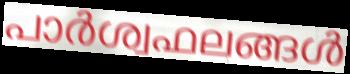
പാർശ്വഫലങ്ങൾ